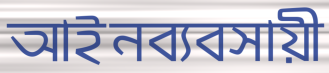
আইনব্যবসায়ী